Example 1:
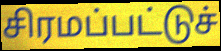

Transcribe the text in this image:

சிரமப்பட்டுச்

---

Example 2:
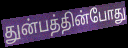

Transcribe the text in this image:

துன்பத்தின்போது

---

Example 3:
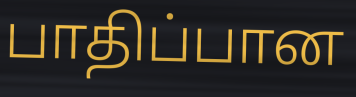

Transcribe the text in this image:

பாதிப்பான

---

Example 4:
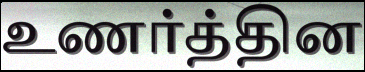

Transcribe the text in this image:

உணர்த்தின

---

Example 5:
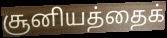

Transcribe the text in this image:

சூனியத்தைக்